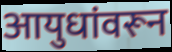
आयुधांवरून